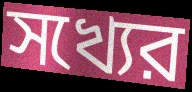
সখ্যের